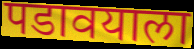
पडावयाला